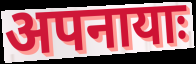
अपनायाः